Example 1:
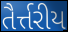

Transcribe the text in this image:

તૈર્ત્તરીય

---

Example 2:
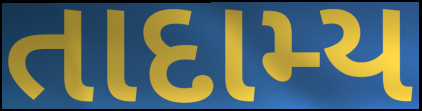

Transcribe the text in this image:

તાદામ્ય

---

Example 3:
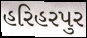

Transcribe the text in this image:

હરિહરપુર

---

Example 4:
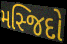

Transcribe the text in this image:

મસ્જિદો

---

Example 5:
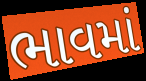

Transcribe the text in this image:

ભાવમાં